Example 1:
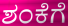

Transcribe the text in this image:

ಶಂಕೆಗೆ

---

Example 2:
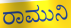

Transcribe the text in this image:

ರಾಮುನಿ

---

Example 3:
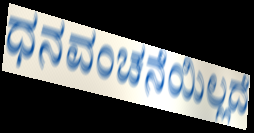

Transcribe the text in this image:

ಧನವಂಚನೆಯಿಲ್ಲದೆ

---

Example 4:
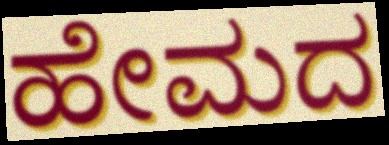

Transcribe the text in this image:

ಹೇಮದ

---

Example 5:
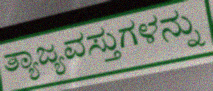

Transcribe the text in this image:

ತ್ಯಾಜ್ಯವಸ್ತುಗಳನ್ನು